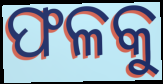
ଫଳକୁ